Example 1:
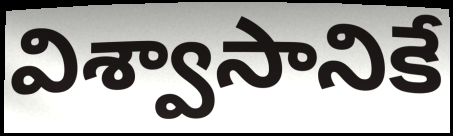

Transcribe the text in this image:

విశ్వాసానికే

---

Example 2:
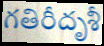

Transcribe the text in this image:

గతిరీదృశీ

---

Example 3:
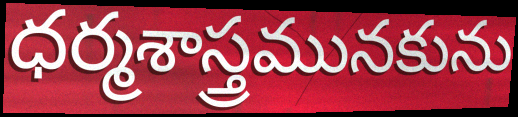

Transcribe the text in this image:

ధర్మశాస్త్రమునకును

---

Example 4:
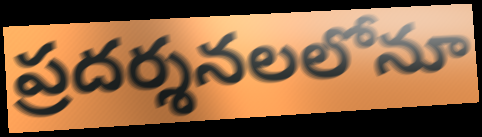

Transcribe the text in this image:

ప్రదర్శనలలోనూ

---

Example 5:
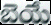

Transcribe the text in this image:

బెయే